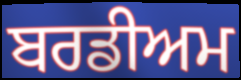
ਬਰਡੀਅਮ